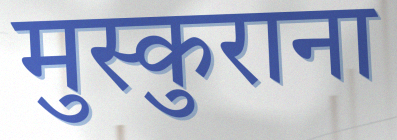
मुस्कुराना